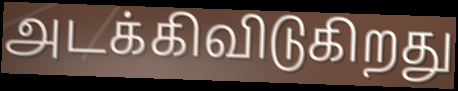
அடக்கிவிடுகிறது